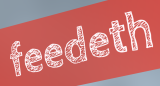
feedeth